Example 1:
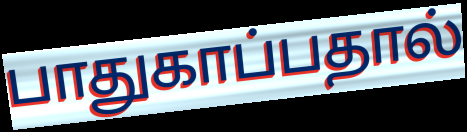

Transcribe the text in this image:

பாதுகாப்பதால்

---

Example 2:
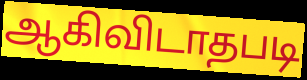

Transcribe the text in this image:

ஆகிவிடாதபடி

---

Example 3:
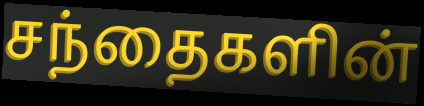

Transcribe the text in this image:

சந்தைகளின்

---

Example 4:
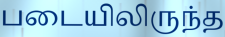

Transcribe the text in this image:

படையிலிருந்த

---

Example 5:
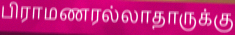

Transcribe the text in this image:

பிராமணரல்லாதாருக்கு